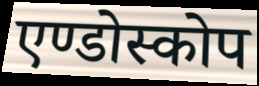
एण्डोस्कोप